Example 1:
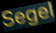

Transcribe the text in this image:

Segel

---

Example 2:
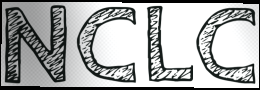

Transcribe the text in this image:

NCLC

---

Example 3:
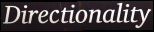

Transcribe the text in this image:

Directionality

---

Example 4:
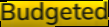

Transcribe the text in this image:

Budgeted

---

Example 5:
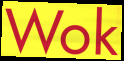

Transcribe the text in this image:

Wok